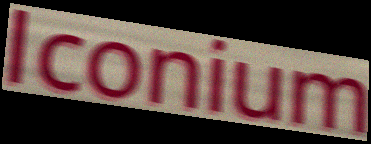
Iconium